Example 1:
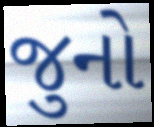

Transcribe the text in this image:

જુનો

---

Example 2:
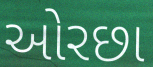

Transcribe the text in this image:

ઓરછા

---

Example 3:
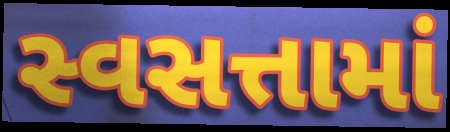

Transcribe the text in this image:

સ્વસત્તામાં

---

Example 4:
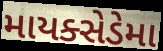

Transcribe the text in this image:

માયક્સેડેમા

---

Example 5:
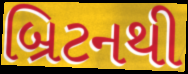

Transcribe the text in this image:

બ્રિટનથી